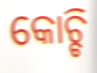
କୋଚ୍ଚି